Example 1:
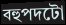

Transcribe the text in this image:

বহুপদটো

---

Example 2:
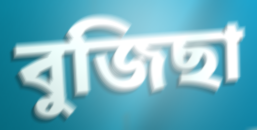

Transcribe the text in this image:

বুজিছা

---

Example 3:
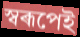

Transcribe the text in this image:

স্বৰূপেই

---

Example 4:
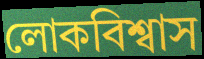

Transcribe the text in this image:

লোকবিশ্বাস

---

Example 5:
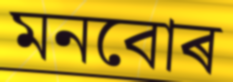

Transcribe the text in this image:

মনবোৰ